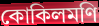
কোকিলমণি